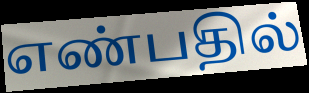
எண்பதில்